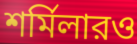
শর্মিলারও